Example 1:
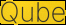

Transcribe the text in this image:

Qube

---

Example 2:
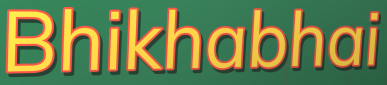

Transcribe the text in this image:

Bhikhabhai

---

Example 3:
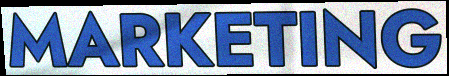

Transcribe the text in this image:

MARKETING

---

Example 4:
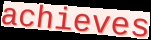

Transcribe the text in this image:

achieves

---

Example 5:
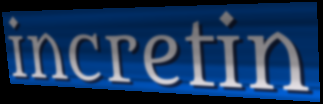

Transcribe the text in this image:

incretin